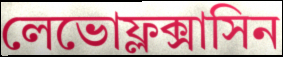
লেভোফ্লক্সাসিন